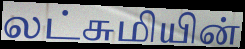
லட்சுமியின்